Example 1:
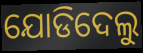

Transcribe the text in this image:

ଯୋଡିଦେଲୁ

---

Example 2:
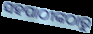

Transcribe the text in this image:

ସହପାଠୀଙ୍କଠାରୁ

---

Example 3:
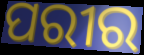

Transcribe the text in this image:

ପରୀର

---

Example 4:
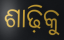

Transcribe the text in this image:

ଶାଢ଼ିକୁ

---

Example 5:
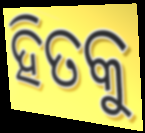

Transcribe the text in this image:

ହିତକୁ